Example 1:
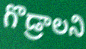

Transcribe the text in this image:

గొడ్రాలని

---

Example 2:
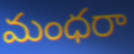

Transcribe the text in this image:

మంధరా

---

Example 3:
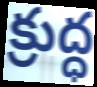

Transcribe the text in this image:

క్రుద్ధ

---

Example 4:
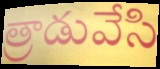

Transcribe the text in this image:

త్రాడువేసి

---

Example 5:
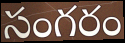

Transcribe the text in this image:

సంగరం